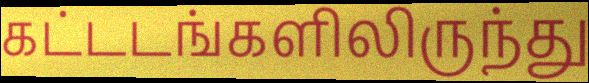
கட்டடங்களிலிருந்து